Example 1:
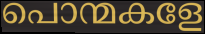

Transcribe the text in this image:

പൊന്മകളേ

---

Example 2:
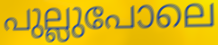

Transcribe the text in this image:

പുല്ലുപോലെ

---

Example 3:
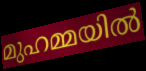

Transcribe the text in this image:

മുഹമ്മയിൽ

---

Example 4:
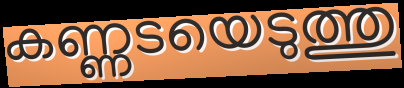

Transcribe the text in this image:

കണ്ണടയെടുത്തു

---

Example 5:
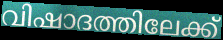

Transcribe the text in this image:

വിഷാദത്തിലേക്ക്